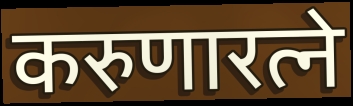
करुणारत्ने